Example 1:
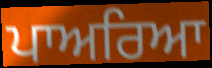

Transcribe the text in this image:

ਪਾਅਰਿਆ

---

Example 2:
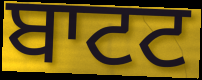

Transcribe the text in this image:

ਬਾਟਟ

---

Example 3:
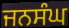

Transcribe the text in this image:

ਜਨਸੰਘ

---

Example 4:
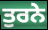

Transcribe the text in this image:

ਤੁਰਨੇ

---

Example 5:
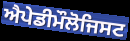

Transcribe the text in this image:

ਐਪੇਡੀਮੌਲੋਜਿਸਟ